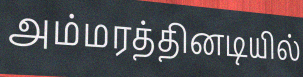
அம்மரத்தினடியில்